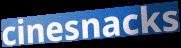
cinesnacks